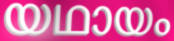
യഥായം